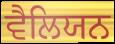
ਵੈਲਿਯਨ